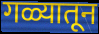
गळ्यातून